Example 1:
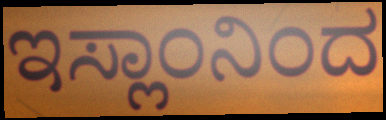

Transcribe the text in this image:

ಇಸ್ಲಾಂನಿಂದ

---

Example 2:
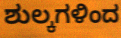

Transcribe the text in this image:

ಶುಲ್ಕಗಳಿಂದ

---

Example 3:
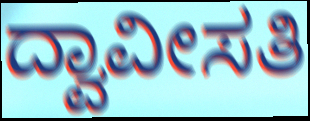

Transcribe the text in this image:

ದ್ವಾವೀಸತಿ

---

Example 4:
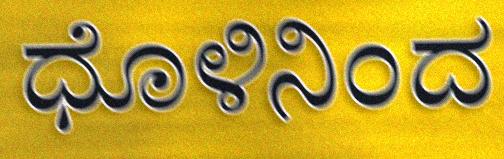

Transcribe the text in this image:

ಧೊಳಿನಿಂದ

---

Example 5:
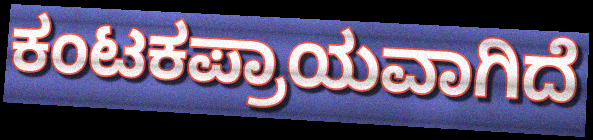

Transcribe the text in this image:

ಕಂಟಕಪ್ರಾಯವಾಗಿದೆ